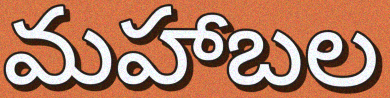
మహాబల